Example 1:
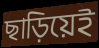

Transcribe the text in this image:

ছাড়িয়েই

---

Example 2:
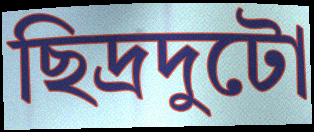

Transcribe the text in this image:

ছিদ্রদুটো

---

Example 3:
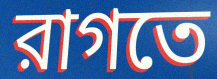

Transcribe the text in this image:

রাগতে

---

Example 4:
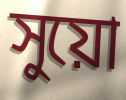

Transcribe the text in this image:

সুয়ো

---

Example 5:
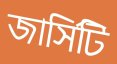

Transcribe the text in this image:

জার্সিটি